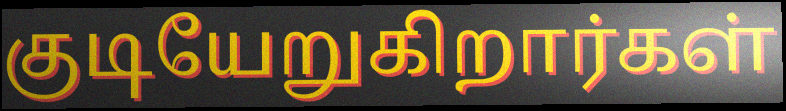
குடியேறுகிறார்கள்